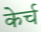
केर्च